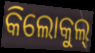
କିଲୋକୁଲ୍